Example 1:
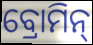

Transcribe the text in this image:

ବ୍ରୋମିନ୍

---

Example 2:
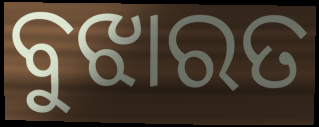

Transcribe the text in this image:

ବୁଝାରତ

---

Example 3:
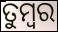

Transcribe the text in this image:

ତୁମ୍ବର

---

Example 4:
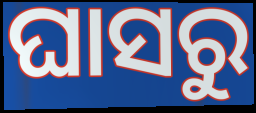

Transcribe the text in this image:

ଘାସରୁ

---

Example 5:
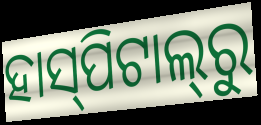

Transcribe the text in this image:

ହାସ୍‍ପିଟାଲ୍‍ରୁ